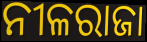
ନୀଳରାଜା